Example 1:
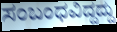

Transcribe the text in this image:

ಸಂಬಂಧವಿದ್ದದ್ದು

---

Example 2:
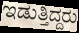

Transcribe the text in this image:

ಇಡುತ್ತಿದ್ದರು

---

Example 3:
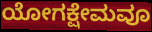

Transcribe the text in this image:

ಯೋಗಕ್ಷೇಮವೂ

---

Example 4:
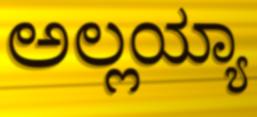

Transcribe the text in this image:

ಅಲ್ಲಯ್ಯಾ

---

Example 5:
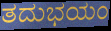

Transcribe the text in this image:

ತದುಭಯಂ